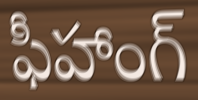
ఫీహాంగ్